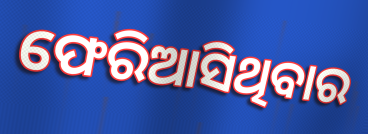
ଫେରିଆସିଥିବାର